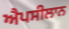
ਐਪਸੀਲਾਨ